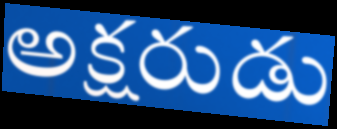
అక్షరుడు